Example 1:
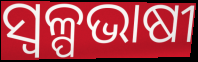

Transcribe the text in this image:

ସ୍ୱଳ୍ପଭାଷୀ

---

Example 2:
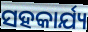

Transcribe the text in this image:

ସହକାର୍ଯ୍ୟ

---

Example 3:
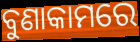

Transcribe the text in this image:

ବୁଣାକାମରେ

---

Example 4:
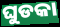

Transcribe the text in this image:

ଘୁଡକା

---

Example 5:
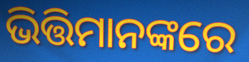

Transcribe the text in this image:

ଭିତ୍ତିମାନଙ୍କରେ